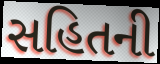
સહિતની